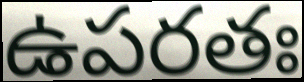
ఉపరతః